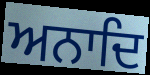
ਅਨਾਦਿ